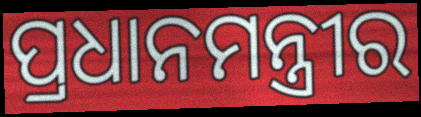
ପ୍ରଧାନମନ୍ତ୍ରୀର